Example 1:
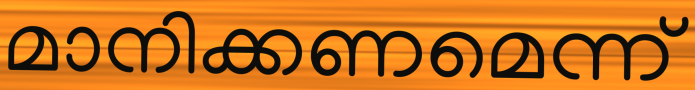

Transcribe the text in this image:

മാനിക്കണമെന്ന്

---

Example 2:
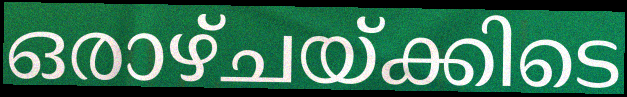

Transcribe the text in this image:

ഒരാഴ്ചയ്ക്കിടെ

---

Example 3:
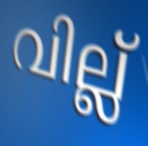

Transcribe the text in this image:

വില്ല്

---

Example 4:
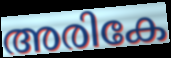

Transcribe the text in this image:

അരികേ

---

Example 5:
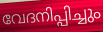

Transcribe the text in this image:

വേദനിപ്പിച്ചും